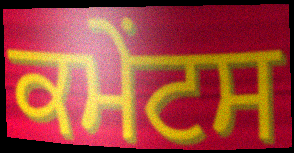
ਕਮੇੰਟਸ